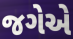
જગેએ